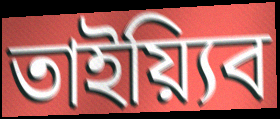
তাইয়্যিব